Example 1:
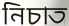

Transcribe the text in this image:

নিচাত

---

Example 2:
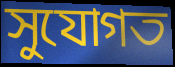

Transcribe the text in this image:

সুযোগত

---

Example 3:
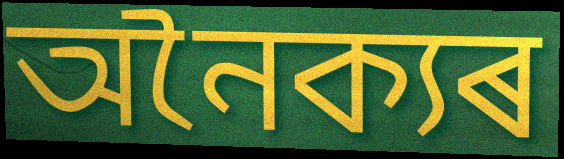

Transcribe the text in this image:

অনৈক্যৰ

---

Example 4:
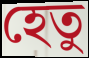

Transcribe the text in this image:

হেতু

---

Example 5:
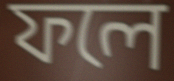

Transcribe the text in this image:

ফলে